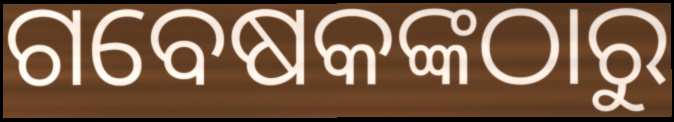
ଗବେଷକଙ୍କଠାରୁ